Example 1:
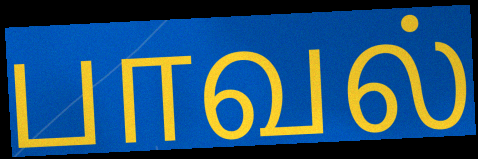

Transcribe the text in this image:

பாவல்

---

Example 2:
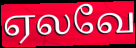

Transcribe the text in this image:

ஏலவே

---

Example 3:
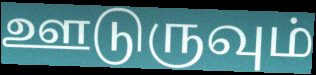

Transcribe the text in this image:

ஊடுருவும்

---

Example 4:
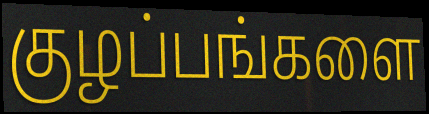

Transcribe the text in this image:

குழப்பங்களை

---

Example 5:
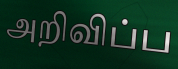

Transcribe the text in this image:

அறிவிப்ப